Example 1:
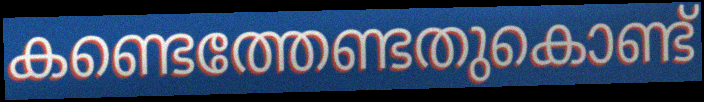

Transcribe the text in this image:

കണ്ടെത്തേണ്ടതുകൊണ്ട്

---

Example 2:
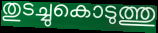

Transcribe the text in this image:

തുടച്ചുകൊടുത്തു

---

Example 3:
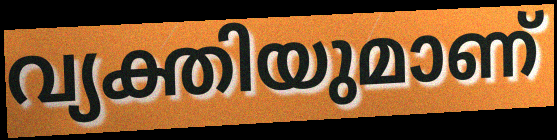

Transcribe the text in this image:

വ്യക്തിയുമാണ്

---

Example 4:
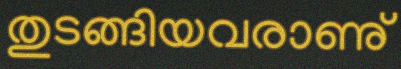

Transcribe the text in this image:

തുടങ്ങിയവരാണു്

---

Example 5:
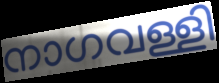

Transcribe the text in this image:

നാഗവള്ളി